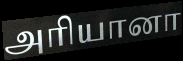
அரியானா